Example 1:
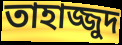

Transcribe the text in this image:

তাহাজ্জুদ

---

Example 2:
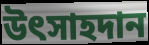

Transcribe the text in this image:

উৎসাহদান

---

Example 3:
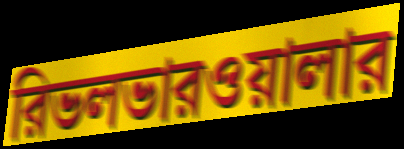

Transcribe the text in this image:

রিভলভারওয়ালার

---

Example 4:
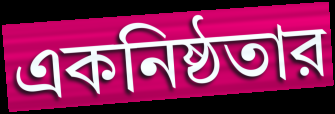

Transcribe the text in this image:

একনিষ্ঠতার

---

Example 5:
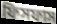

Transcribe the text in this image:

ফিসফাস